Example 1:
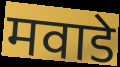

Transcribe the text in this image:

मवाडे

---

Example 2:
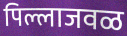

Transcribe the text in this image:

पिल्लाजवळ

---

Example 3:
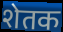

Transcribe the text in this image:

शेतक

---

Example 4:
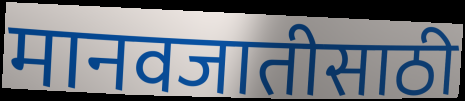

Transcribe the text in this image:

मानवजातीसाठी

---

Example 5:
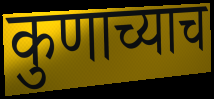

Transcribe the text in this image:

कुणाच्याच